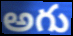
అగు